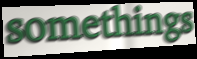
somethings